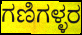
ಗಣಿಗಳ್ಳರ